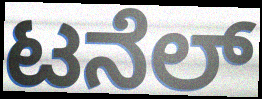
ಟನೆಲ್